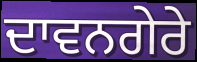
ਦਾਵਨਗੇਰੇ